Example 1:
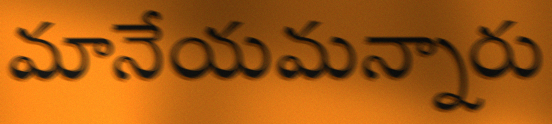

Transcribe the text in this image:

మానేయమన్నారు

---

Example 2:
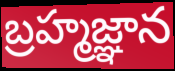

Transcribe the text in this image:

బ్రహ్మజ్ఞాన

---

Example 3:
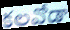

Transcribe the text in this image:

కలవోడా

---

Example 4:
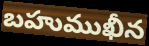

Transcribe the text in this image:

బహుముఖీన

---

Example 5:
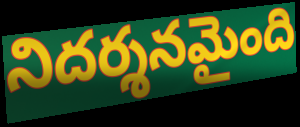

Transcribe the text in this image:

నిదర్శనమైంది